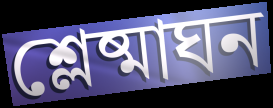
শ্লেষ্মাঘন